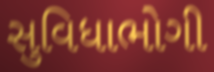
સુવિધાભોગી